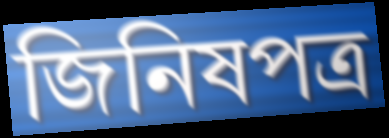
জিনিষপত্র